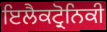
ਇਲੈਕਟ੍ਰੋਨਿਕੀ